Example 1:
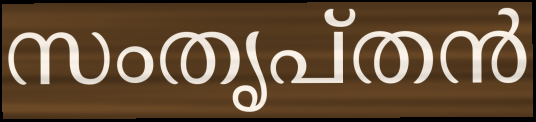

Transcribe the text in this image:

സംതൃപ്തൻ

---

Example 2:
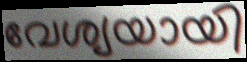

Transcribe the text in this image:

വേശ്യയായി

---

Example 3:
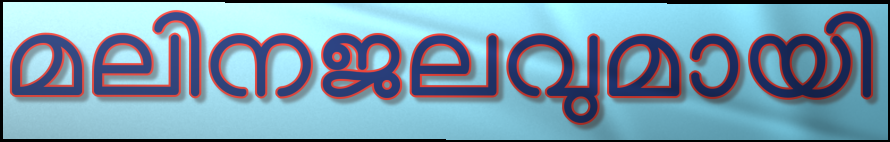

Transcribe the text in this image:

മലിനജലവുമായി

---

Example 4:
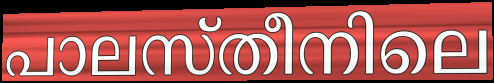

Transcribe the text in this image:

പാലസ്തീനിലെ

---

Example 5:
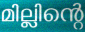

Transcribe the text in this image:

മില്ലിന്റെ